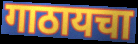
गाठायचा